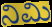
ನಿಮಿ